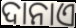
ଦାନାଏ